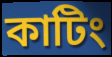
কাটিং